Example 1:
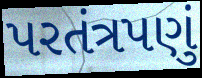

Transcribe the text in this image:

પરતંત્રપણું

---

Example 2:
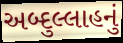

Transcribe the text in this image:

અબ્દુલ્લાહનું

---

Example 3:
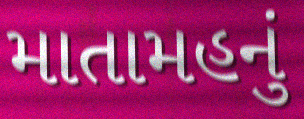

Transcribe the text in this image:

માતામહનું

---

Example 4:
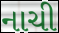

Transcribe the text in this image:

નાચી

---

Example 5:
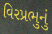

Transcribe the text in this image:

વિરપ્રભુનું